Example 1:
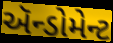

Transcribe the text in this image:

ઍન્ડોમેન્ટ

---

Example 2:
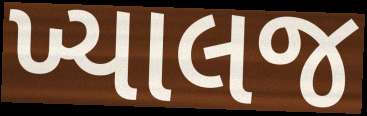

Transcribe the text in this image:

ખ્યાલજ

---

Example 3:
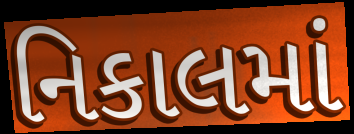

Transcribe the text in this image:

નિકાલમાં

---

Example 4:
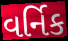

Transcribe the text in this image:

વર્નિક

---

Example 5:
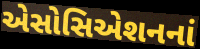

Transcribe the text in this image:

એસોસિએશનનાં